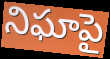
నిఘాపై